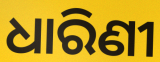
ଧାରିଣୀ